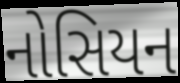
નોસિયન